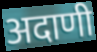
अदाणी